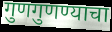
गुणगुणण्याचा